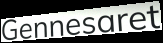
Gennesaret